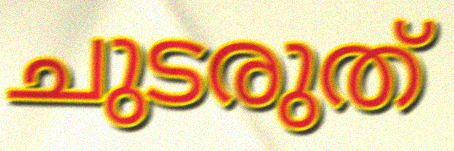
ചുടരുത്